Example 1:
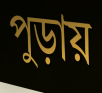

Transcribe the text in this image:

পুড়ায়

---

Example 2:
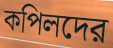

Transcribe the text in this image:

কপিলদের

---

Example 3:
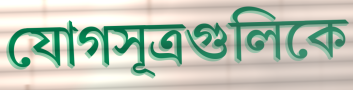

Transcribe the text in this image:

যোগসূত্রগুলিকে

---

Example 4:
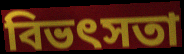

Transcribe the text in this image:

বিভৎসতা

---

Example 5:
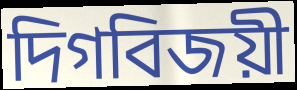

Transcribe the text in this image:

দিগবিজয়ী